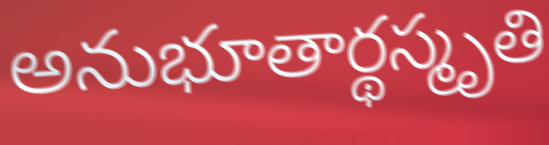
అనుభూతార్థస్మృతి